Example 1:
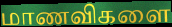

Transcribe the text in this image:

மாணவிகளை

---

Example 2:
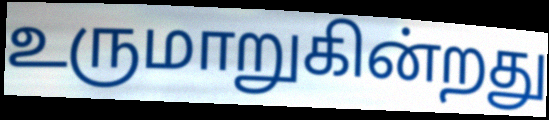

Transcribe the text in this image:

உருமாறுகின்றது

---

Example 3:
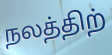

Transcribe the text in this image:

நலத்திற்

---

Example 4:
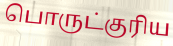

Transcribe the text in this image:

பொருட்குரிய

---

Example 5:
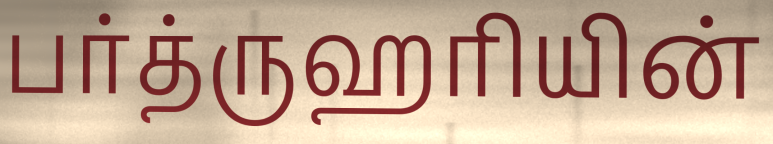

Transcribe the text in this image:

பர்த்ருஹரியின்